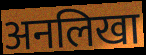
अनलिखा